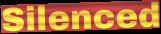
Silenced